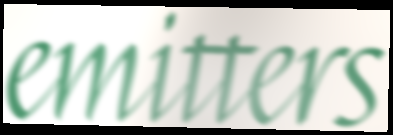
emitters